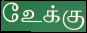
உேக்கு